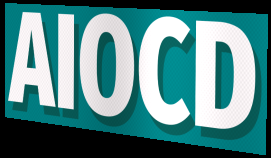
AIOCD